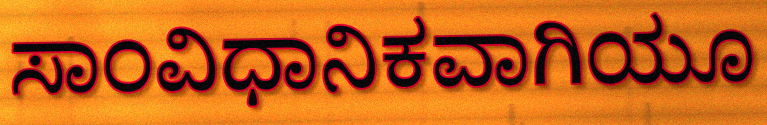
ಸಾಂವಿಧಾನಿಕವಾಗಿಯೂ